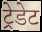
ट्रेडेट